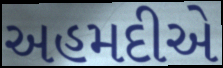
અહમદીએ